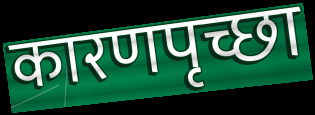
कारणपृच्छा